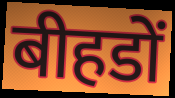
बीहडों